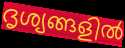
ദൃശ്യങ്ങളിൽ